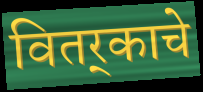
वितर्काचे